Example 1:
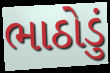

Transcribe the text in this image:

ભાઠોડું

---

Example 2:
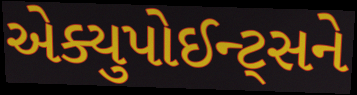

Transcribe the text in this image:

એક્યુપોઈન્ટ્સને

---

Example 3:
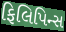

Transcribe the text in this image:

ફિલિપિન્સ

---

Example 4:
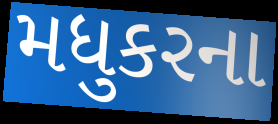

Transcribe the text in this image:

મધુકરના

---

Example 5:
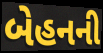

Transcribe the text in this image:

બેહનની